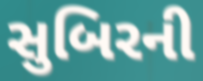
સુબિરની